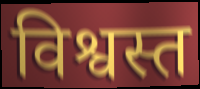
विश्वस्त